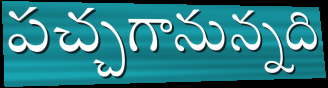
పచ్చగానున్నది